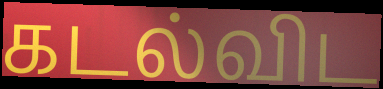
கடல்விட